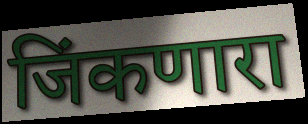
जिंकणारा